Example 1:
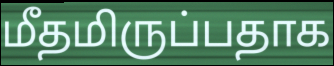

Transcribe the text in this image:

மீதமிருப்பதாக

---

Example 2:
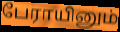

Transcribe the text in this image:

பேராயினும்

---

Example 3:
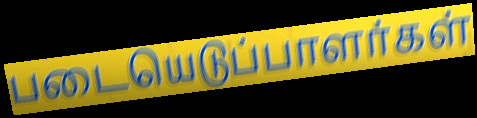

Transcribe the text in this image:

படையெடுப்பாளர்கள்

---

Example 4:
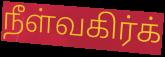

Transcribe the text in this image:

நீள்வகிர்க்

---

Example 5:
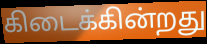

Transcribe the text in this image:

கிடைக்கின்றது